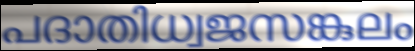
പദാതിധ്വജസങ്കുലം